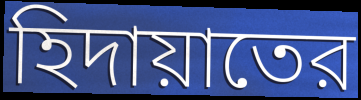
হিদায়াতের